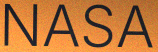
NASA